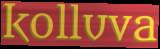
kolluva